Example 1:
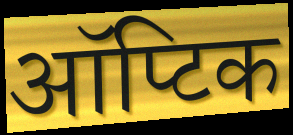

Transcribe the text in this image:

ऑप्टिक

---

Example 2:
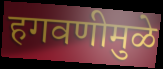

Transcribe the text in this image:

हगवणीमुळे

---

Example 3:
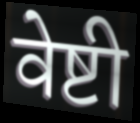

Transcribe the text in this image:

वेष्टी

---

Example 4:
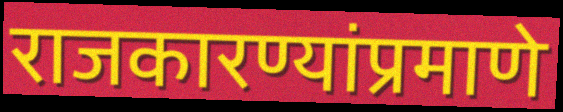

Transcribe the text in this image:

राजकारण्यांप्रमाणे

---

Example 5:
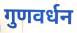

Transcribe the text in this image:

गुणवर्धन